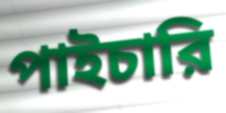
পাইচারি